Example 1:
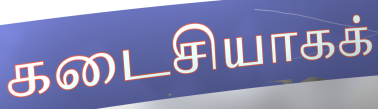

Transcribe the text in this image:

கடைசியாகக்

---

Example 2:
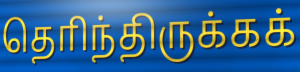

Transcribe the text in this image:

தெரிந்திருக்கக்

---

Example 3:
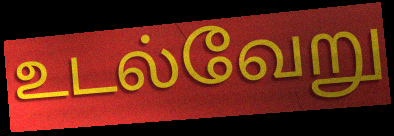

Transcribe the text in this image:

உடல்வேறு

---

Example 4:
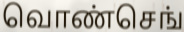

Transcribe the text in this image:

வொண்செங்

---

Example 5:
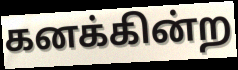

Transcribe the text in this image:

கனக்கின்ற